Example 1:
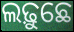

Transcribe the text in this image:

ଲଢ଼ୁଛେ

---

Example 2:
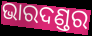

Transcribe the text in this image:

ଭାରଦଣ୍ଡର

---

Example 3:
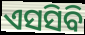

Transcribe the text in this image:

ଏସସିବି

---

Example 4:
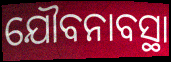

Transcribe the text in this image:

ଯୌବନାବସ୍ଥା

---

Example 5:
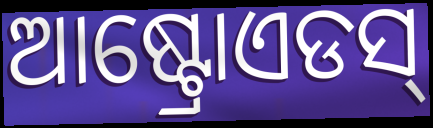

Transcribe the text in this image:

ଆଷ୍ଟ୍ରୋଏଡସ୍